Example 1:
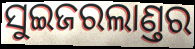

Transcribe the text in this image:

ସୁଇଜରଲାଣ୍ତର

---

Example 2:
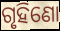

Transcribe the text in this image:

ଗୃହିଣୋ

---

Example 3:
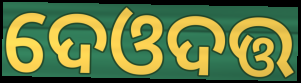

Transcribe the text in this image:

ଦେଓଦତ୍ତ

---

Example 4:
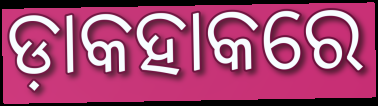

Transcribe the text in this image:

ଡ଼ାକହାକରେ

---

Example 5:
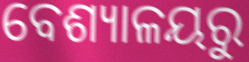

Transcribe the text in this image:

ବେଶ୍ୟାଳୟରୁ